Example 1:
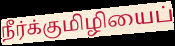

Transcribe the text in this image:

நீர்க்குமிழியைப்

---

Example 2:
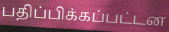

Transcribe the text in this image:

பதிப்பிக்கப்பட்டன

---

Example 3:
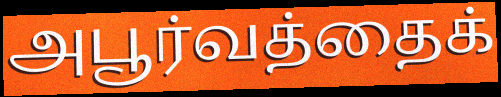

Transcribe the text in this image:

அபூர்வத்தைக்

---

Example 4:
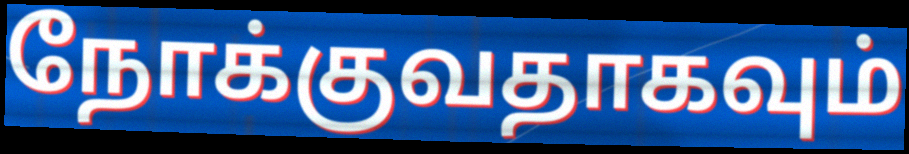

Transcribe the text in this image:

நோக்குவதாகவும்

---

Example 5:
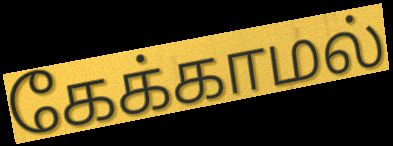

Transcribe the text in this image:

கேக்காமல்